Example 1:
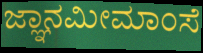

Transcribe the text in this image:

ಜ್ಞಾನಮೀಮಾಂಸೆ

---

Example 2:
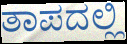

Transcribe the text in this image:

ತಾಪದಲ್ಲಿ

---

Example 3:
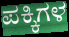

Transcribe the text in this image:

ಪಕ್ಕಿಗಳ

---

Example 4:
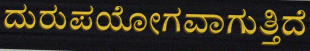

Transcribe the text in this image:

ದುರುಪಯೋಗವಾಗುತ್ತಿದೆ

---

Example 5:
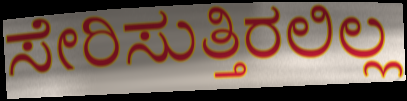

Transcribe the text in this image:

ಸೇರಿಸುತ್ತಿರಲಿಲ್ಲ